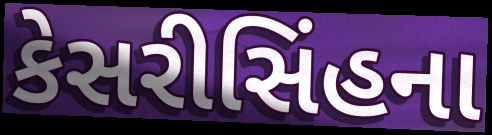
કેસરીસિંહના